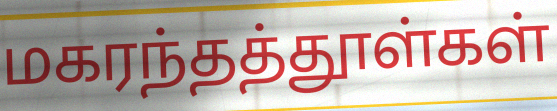
மகரந்தத்தூள்கள்